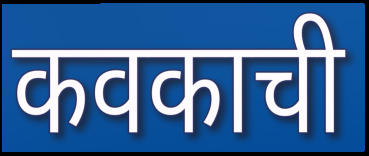
कवकाची